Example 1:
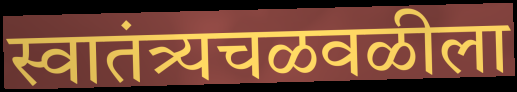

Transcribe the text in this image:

स्वातंत्र्यचळवळीला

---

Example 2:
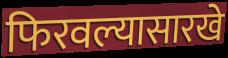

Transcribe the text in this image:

फिरवल्यासारखे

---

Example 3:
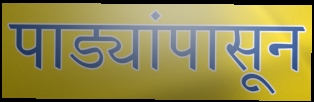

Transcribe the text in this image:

पाड्यांपासून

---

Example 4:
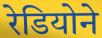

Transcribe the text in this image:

रेडियोने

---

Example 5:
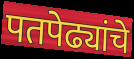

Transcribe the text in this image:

पतपेढ्यांचे